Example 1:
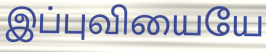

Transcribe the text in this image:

இப்புவியையே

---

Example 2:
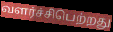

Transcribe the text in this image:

வளர்ச்சிபெற்றது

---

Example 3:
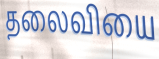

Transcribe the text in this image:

தலைவியை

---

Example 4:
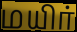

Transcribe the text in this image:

மயிர்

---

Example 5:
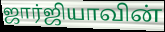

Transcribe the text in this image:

ஜார்ஜியாவின்